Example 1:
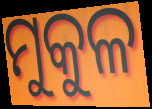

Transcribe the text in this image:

ମୁକୁଳ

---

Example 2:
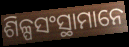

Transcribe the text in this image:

ଶିଳ୍ପସଂସ୍ଥାମାନେ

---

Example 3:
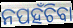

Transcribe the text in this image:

ନପହଁଚିବା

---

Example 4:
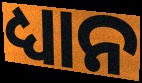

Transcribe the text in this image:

ଧ୍ୟାନ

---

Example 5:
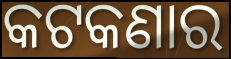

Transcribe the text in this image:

କଟକଣାର